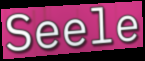
Seele